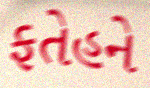
ફતેહને